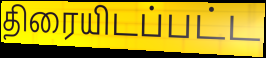
திரையிடப்பட்ட